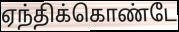
ஏந்திக்கொண்டே